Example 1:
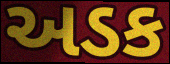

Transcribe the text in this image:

અડક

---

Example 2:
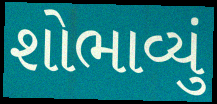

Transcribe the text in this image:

શોભાવ્યું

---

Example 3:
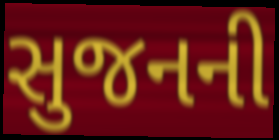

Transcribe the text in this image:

સુજનની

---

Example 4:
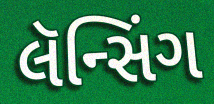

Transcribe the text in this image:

લૅન્સિંગ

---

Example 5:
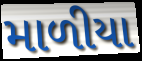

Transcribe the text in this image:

માળીયા